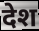
देश